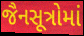
જૈનસૂત્રોમાં